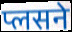
प्लसने